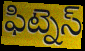
ఫిట్నెస్